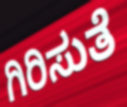
ಗಿರಿಸುತೆ